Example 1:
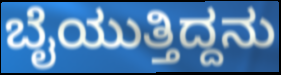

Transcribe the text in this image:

ಬೈಯುತ್ತಿದ್ದನು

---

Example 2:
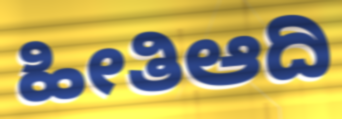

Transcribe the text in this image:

ಹೀತಿಆದಿ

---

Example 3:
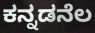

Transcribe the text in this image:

ಕನ್ನಡನೆಲ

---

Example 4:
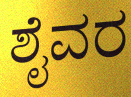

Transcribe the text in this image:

ಶೈವರ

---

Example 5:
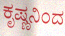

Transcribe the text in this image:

ಕೃಷ್ಣನಿಂದ